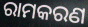
ରାମକରଣ